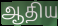
ஆதிய